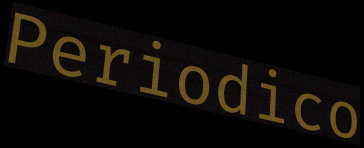
Periodico